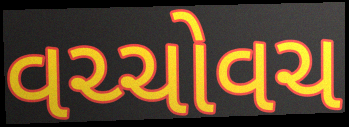
વચ્ચોવચ